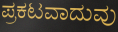
ಪ್ರಕಟವಾದುವು